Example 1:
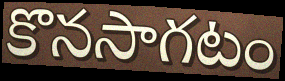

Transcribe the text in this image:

కొనసాగటం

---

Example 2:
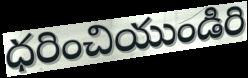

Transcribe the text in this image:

ధరించియుండిరి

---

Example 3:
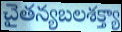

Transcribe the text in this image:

చైతన్యబలశక్త్యా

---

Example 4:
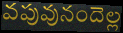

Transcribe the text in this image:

వపువునందెల్ల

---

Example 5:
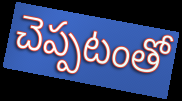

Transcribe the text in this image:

చెప్పటంతో